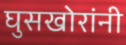
घुसखोरांनी